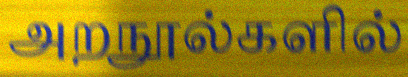
அறநூல்களில்